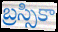
బ్రస్సికా